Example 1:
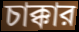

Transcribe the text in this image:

চাক্কার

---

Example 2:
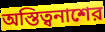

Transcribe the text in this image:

অস্তিত্বনাশের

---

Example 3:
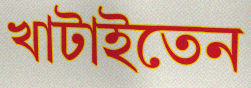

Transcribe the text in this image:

খাটাইতেন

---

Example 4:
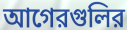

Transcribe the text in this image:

আগেরগুলির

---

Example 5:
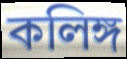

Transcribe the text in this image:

কলিঙ্গ